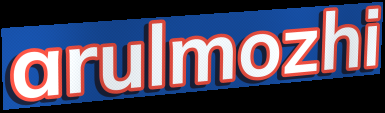
arulmozhi